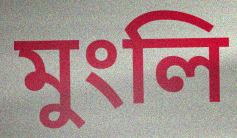
মুংলি